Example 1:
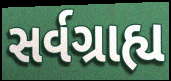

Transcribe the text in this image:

સર્વગ્રાહ્ય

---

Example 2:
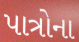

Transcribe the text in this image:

પાત્રોના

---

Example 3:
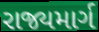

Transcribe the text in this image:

રાજ્યમાર્ગ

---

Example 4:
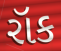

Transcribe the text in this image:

રૉક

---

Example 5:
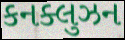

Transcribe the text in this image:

કનક્લુઝન